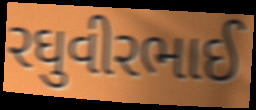
રઘુવીરભાઈ